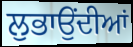
ਲੁਭਾਉਂਦੀਆਂ